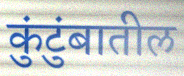
कुंटुंबातील